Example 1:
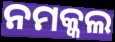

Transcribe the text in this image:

ନମକ୍କଲ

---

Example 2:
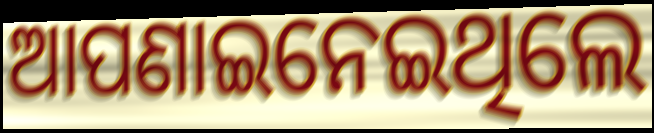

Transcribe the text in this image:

ଆପଣାଇନେଇଥିଲେ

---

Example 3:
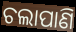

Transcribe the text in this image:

ଚଲାପାଣି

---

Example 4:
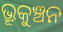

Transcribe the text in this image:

ଭ୍ରୂକୁଞ୍ଚନ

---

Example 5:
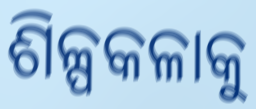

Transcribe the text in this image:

ଶିଳ୍ପକଳାକୁ